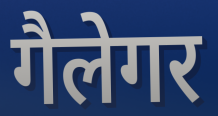
गैलेगर